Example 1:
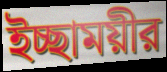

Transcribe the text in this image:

ইচ্ছাময়ীর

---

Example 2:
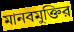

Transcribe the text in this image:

মানবমুক্তির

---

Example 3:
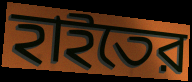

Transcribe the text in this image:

হাইতের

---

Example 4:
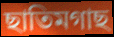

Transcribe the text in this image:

ছাতিমগাছ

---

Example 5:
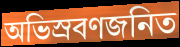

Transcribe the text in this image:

অভিস্রবণজনিত